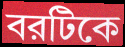
বরটিকে